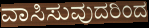
ವಾಸಿಸುವುದರಿಂದ